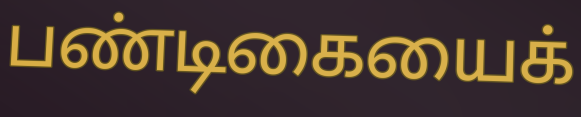
பண்டிகையைக்